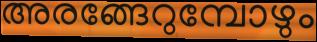
അരങ്ങേറുമ്പോഴും